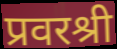
प्रवरश्री